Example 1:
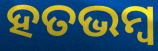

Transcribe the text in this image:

ହତଭମ୍ୱ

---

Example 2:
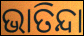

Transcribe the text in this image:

ଭାତିନ୍ଦା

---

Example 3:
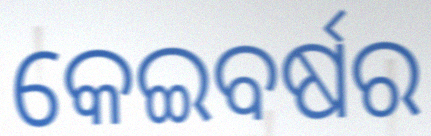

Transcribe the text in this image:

କେଇବର୍ଷର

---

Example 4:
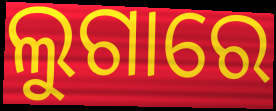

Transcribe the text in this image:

ଲୁଗାରେ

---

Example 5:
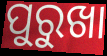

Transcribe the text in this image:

ପୁରୁଖା